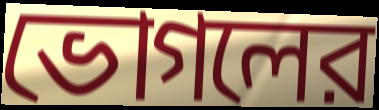
ভোগলের